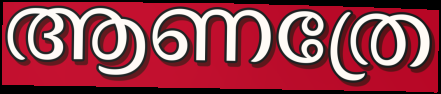
ആണത്രേ